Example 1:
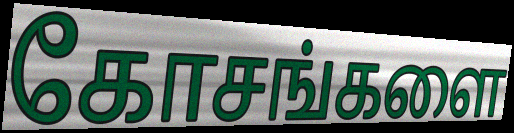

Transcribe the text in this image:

கோசங்களை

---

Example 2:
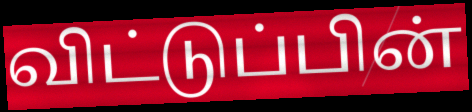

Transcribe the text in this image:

விட்டுப்பின்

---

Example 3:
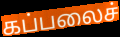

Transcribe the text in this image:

கப்பலைச்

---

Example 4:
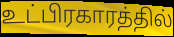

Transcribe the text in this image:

உட்பிரகாரத்தில்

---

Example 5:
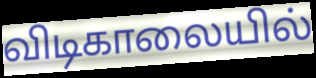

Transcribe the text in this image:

விடிகாலையில்